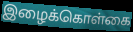
இழைக்கொள்கை